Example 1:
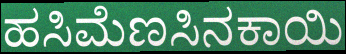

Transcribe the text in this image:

ಹಸಿಮೆಣಸಿನಕಾಯಿ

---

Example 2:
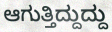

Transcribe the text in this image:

ಆಗುತ್ತಿದ್ದುದ್ದು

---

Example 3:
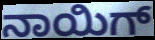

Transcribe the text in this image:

ನಾಯಿಗ್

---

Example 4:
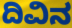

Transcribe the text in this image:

ದಿವಿನ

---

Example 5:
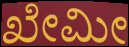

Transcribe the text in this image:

ಖೇಮೀ